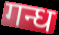
गन्ध